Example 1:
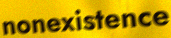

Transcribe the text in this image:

nonexistence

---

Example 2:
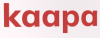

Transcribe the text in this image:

kaapa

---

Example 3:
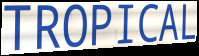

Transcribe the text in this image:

TROPICAL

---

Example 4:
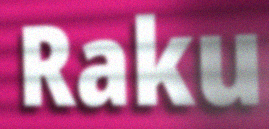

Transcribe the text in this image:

Raku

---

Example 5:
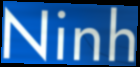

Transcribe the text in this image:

Ninh